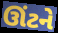
ઊંટને